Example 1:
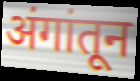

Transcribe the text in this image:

अंगांतून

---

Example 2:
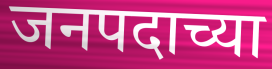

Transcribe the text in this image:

जनपदाच्या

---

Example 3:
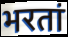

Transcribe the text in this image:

भरतां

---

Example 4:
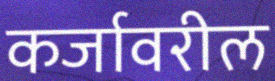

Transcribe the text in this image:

कर्जावरील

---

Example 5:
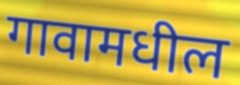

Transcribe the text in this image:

गावामधील